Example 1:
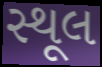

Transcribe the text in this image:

સ્થૂલ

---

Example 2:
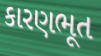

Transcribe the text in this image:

કારણભૂત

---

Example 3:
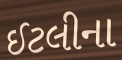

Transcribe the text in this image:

ઈટલીના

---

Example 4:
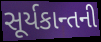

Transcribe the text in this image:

સૂર્યકાન્તની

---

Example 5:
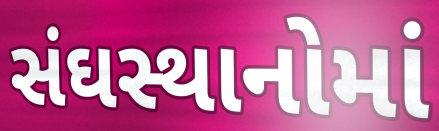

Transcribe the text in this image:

સંઘસ્થાનોમાં